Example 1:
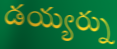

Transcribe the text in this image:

డయ్యర్ను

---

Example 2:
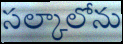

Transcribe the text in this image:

సల్కాలోను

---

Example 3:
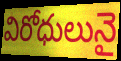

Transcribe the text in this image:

విరోధులునై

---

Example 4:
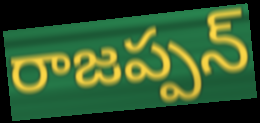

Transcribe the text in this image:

రాజప్పన్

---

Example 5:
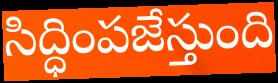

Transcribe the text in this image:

సిద్ధింపజేస్తుంది